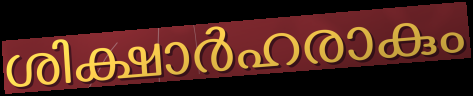
ശിക്ഷാർഹരാകും